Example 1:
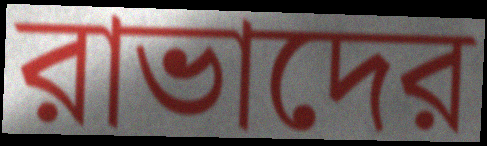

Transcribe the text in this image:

রাভাদের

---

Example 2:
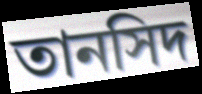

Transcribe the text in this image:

তানসিদ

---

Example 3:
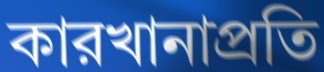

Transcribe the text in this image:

কারখানাপ্রতি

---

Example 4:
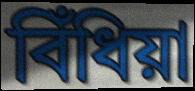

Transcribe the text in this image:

বিঁধিয়া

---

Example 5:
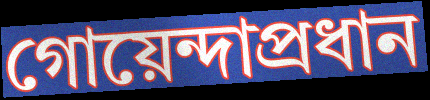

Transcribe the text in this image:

গোয়েন্দাপ্রধান